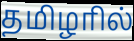
தமிழரில்